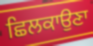
ਛਿਲਕਾਉਣਾ